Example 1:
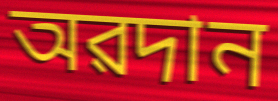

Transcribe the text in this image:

অৱদান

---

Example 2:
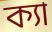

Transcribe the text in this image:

ক্যা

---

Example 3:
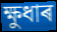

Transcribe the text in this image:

ক্ষুধাৰ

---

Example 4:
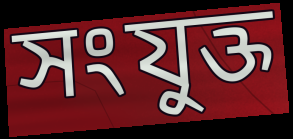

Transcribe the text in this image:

সংযুক্ত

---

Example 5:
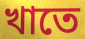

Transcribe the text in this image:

খাতে